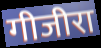
गीजीरा